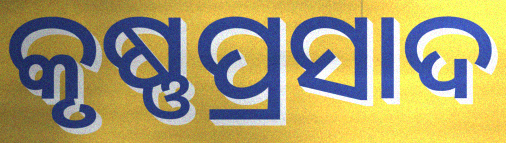
କୃଷ୍ଣପ୍ରସାଦ